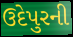
ઉદેપુરની